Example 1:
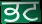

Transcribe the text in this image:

ਭਟ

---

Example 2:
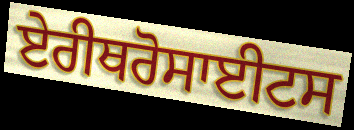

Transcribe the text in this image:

ਏਰੀਥਰੋਸਾਈਟਸ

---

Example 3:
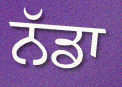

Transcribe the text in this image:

ਨੱਡਾ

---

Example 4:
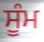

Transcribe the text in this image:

ਸੂੰਮ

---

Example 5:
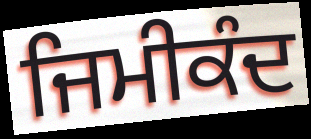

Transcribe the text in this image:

ਜਿਮੀਕੰਦ